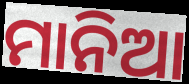
ମାନିଆ